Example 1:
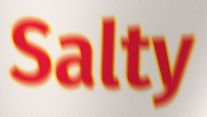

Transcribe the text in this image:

Salty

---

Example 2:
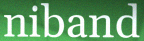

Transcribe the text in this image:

niband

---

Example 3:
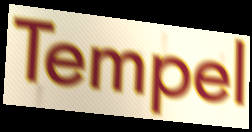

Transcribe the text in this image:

Tempel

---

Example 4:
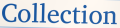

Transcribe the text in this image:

Collection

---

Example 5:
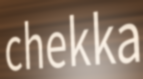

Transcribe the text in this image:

chekka